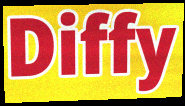
Diffy